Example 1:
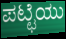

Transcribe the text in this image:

ಪಟ್ಟೆಯು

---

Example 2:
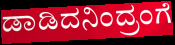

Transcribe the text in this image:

ಡಾಡಿದನಿಂದ್ರಂಗೆ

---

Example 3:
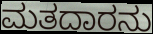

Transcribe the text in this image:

ಮತದಾರನು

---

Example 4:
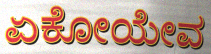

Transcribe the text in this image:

ಏಕೋಯೇವ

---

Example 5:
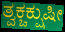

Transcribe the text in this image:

ತ್ವಕ್ಚಕ್ಷುಷೀ